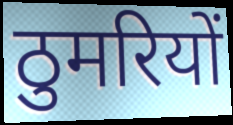
ठुमरियों